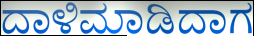
ದಾಳಿಮಾಡಿದಾಗ